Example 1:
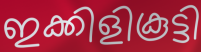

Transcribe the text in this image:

ഇക്കിളികൂട്ടി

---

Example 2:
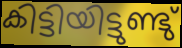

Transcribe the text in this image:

കിട്ടിയിട്ടുണ്ടു്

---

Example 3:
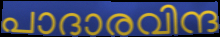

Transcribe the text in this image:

പാദാരവിന്ദ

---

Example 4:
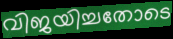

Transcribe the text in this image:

വിജയിച്ചതോടെ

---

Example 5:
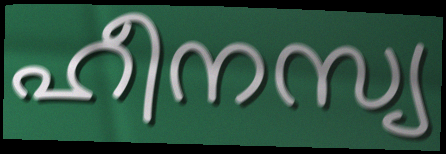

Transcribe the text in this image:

ഹീനസ്യ